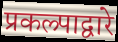
प्रकल्पाद्वारे